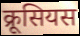
क्रूसियस